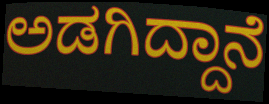
ಅಡಗಿದ್ದಾನೆ